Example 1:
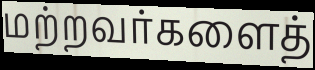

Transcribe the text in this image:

மற்றவர்களைத்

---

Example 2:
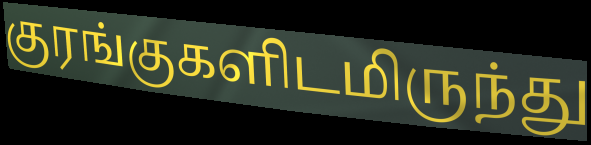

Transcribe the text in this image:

குரங்குகளிடமிருந்து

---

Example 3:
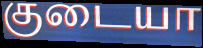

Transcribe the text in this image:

குடையா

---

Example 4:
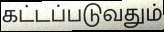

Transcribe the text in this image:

கட்டப்படுவதும்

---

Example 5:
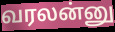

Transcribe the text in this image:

வரலன்னு